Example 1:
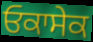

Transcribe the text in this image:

ਓਕਾਸੇਕ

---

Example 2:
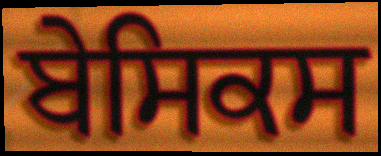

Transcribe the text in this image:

ਬੇਸਿਕਸ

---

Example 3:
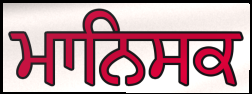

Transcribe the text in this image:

ਮਾਨਿਸਕ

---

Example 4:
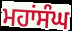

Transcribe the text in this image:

ਮਹਾਂਸੰਘ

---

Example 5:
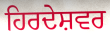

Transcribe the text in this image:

ਹਿਰਦੇਸ਼ਵਰ